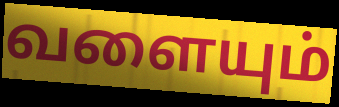
வளையும்